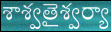
శాశ్వతైశ్వర్యా